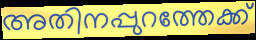
അതിനപ്പുറത്തേക്ക്